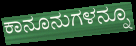
ಕಾನೂನುಗಳನ್ನೂ